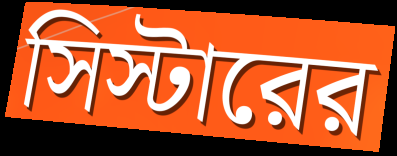
সিস্টারের